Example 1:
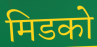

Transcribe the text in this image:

मिडको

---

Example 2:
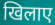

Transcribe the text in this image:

खिलाए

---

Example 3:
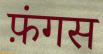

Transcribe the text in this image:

फ़ंगस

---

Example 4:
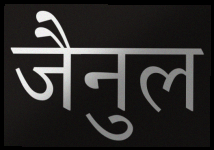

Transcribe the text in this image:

जैनुल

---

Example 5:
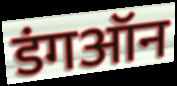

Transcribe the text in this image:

डंगऑन